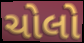
ચોલો